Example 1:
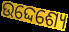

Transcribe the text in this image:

ଉଦ୍ଦେଶ୍ୟେ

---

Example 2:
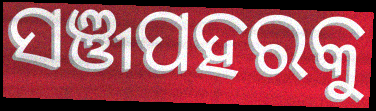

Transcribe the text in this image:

ସଞ୍ଜପହରକୁ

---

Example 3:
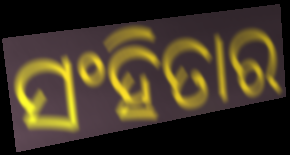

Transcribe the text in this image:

ସଂହିତାର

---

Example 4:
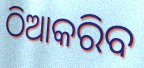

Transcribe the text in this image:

ଠିଆକରିବ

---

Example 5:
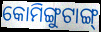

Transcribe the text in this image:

କୋମିଙ୍ଗୁଟାଙ୍ଗ୍